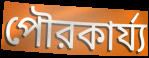
পৌরকার্য্য